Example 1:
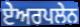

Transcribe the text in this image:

ਏਅਰਪਲੇਨ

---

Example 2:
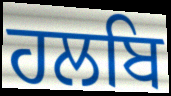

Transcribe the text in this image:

ਹਲਬਿ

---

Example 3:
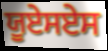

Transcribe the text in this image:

ਯੂਏਸਏਸ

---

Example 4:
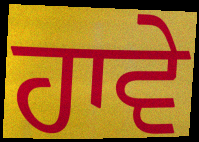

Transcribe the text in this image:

ਹਾਵੇ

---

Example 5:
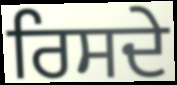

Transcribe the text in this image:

ਰਿਸਦੇ